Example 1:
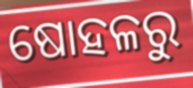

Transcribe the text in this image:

ଷୋହଳରୁ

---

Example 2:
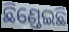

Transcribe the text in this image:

ଛିଣ୍ଡେଇଛି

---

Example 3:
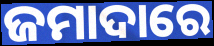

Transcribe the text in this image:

ଜମାଦାରେ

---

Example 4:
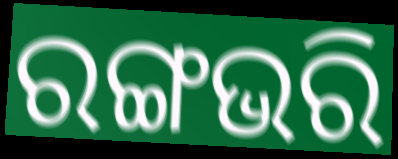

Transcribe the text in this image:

ରଙ୍ଗଭରି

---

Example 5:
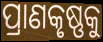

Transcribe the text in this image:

ପ୍ରାଣକୃଷ୍ଣକୁ